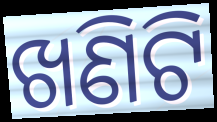
ଖଣିଟି